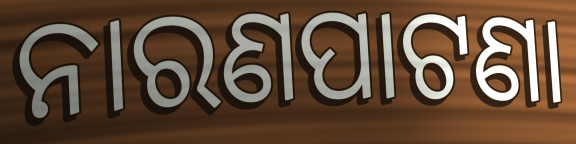
ନାରଣପାଟଣା